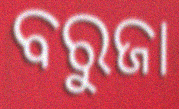
ବରୁଜା